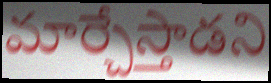
మార్చేస్తాడని